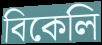
বিকেলি